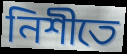
নিশীতে